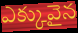
ఎక్కువైన